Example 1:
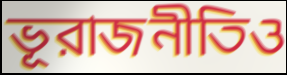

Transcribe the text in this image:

ভূরাজনীতিও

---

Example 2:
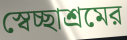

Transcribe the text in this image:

স্বেচ্ছাশ্রমের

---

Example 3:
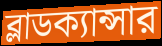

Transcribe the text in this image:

ব্লাডক্যান্সার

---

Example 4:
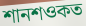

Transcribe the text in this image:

শানশওকত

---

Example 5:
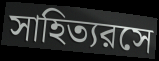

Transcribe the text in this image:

সাহিত্যরসে